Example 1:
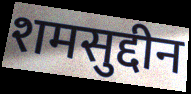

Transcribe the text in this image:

शमसुद्दीन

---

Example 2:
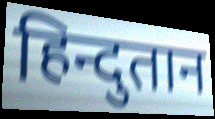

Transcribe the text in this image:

हिन्दुतान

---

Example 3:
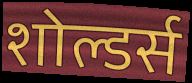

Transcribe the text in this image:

शोल्डर्स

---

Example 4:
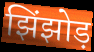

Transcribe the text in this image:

झिंझोड़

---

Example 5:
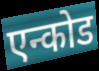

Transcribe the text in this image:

एन्कोड